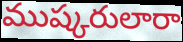
ముష్కరులారా